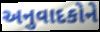
અનુવાદકોને